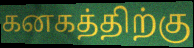
கனகத்திற்கு